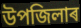
উপজিলাৰ